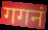
गगनं